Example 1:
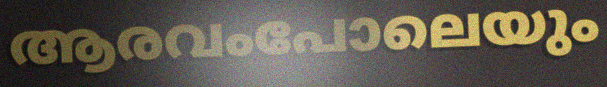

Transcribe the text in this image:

ആരവംപോലെയും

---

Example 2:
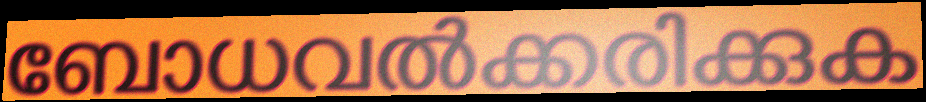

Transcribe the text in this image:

ബോധവൽക്കരിക്കുക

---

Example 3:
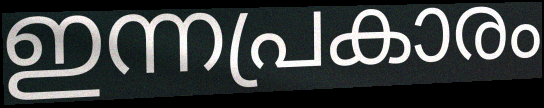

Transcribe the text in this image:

ഇന്നപ്രകാരം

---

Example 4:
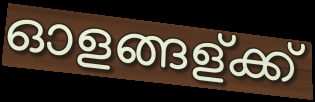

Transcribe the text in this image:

ഓളങ്ങള്ക്ക്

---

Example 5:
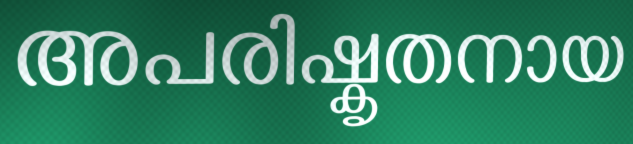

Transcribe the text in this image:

അപരിഷ്കൃതനായ